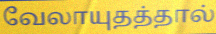
வேலாயுதத்தால்